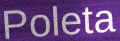
Poleta